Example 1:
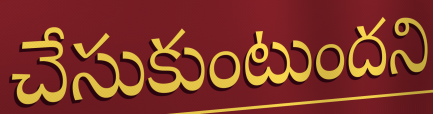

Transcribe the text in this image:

చేసుకుంటుందని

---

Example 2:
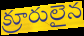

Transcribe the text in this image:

క్రూరులైన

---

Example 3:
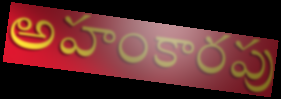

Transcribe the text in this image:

అహంకారపు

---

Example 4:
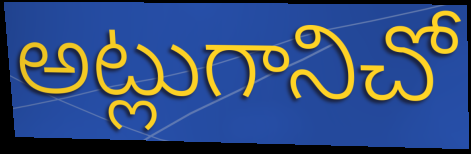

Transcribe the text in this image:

అట్లుగానిచో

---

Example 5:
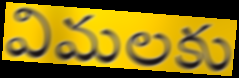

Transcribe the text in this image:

విమలకు